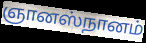
ஞானஸ்நானம்